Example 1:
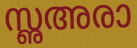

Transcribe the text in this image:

സൢഅരാ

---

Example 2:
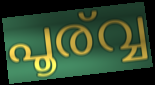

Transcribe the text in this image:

പൂര്വ്വ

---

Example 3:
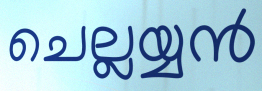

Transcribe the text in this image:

ചെല്ലയ്യൻ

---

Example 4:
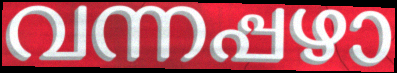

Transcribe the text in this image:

വന്നപ്പഴാ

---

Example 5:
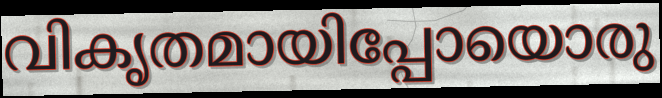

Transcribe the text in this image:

വികൃതമായിപ്പോയൊരു